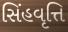
સિંહવૃત્તિ